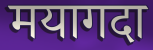
मयागदा